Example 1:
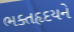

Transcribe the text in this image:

ભક્તહૃદયને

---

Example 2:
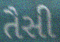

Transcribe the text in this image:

તૈસી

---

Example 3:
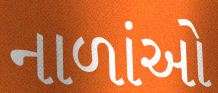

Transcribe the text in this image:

નાળાંઓ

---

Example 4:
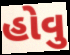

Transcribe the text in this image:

હોવુ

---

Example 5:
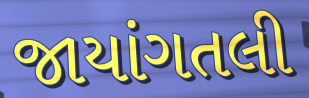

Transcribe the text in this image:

જાયાંગતલી